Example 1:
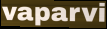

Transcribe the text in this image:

vaparvi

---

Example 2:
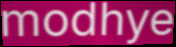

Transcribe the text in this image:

modhye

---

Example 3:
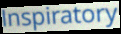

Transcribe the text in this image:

Inspiratory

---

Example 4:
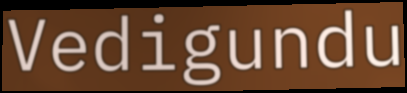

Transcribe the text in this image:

Vedigundu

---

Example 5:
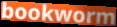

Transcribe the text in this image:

bookworm